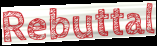
Rebuttal